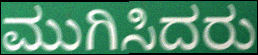
ಮುಗಿಸಿದರು